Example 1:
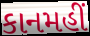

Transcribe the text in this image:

કાનમહીં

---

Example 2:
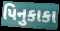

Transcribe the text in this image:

પિનુકાકા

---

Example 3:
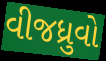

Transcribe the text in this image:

વીજધ્રુવો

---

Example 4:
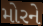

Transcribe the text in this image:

મોરને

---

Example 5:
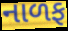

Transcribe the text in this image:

નાળફ